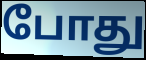
போது